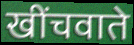
खींचवाते